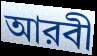
আরবী